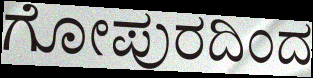
ಗೋಪುರದಿಂದ